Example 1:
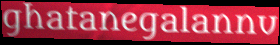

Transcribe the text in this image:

ghatanegalannu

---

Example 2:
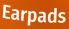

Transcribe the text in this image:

Earpads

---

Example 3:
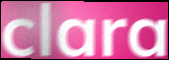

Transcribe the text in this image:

clara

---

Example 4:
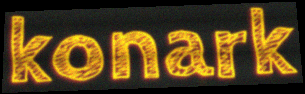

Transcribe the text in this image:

konark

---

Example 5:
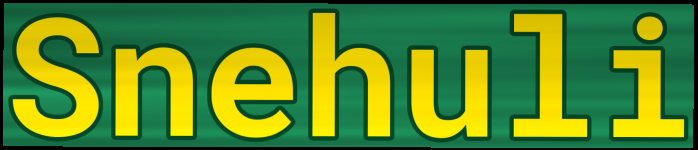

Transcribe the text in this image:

Snehuli